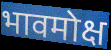
भावमोक्ष